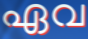
ഏവ